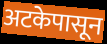
अटकेपासून